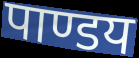
पाण्डय